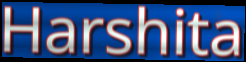
Harshita